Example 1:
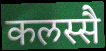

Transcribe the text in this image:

कलस्सै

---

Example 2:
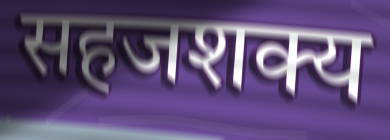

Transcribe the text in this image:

सहजशक्य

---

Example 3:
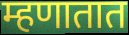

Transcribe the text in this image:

म्हणातात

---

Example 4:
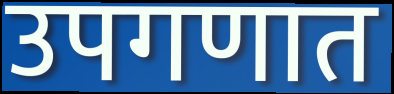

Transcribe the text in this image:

उपगणात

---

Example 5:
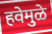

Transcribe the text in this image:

हवेमुळे